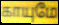
காயுமே